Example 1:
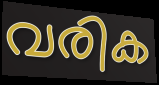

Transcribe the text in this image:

വരിക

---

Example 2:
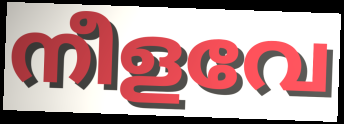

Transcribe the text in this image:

നീളവേ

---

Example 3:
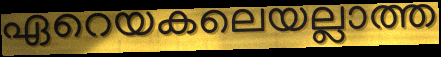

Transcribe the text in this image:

ഏറെയകലെയല്ലാത്ത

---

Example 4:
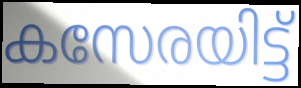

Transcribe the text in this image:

കസേരയിട്ട്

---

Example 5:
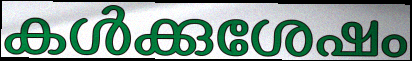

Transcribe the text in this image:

കൾക്കുശേഷം